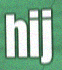
hij